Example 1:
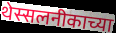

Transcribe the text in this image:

थेस्सलनीकाच्या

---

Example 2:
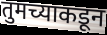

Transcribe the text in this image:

तुमच्याकडून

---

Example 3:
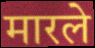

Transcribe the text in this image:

मारले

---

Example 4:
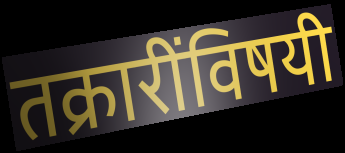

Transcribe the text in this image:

तक्रारींविषयी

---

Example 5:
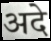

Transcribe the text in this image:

अदे